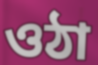
ওঠা